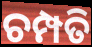
ଚମ୍ପତି